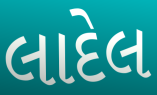
લાદેલ